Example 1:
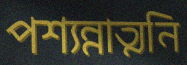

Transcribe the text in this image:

পশ্যন্নাত্মনি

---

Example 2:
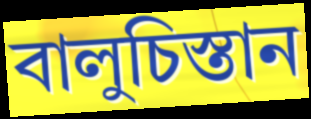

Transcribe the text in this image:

বালুচিস্তান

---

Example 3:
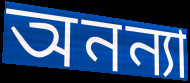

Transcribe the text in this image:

অনন্যা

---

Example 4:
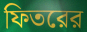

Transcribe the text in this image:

ফিতরের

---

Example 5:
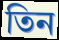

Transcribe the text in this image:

তিন